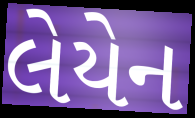
લેયેન